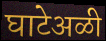
घाटेअळी